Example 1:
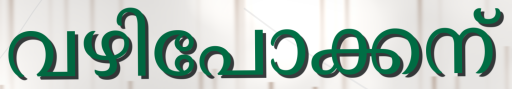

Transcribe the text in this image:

വഴിപോക്കന്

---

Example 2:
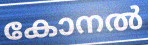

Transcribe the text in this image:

കോനൽ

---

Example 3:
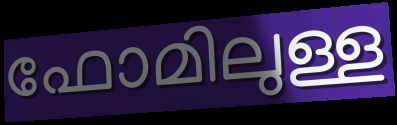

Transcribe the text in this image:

ഫോമിലുള്ള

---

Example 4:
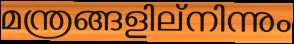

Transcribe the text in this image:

മന്ത്രങ്ങളില്നിന്നും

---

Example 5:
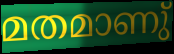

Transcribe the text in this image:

മതമാണു്